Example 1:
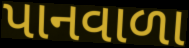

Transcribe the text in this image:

પાનવાળા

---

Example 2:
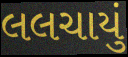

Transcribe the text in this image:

લલચાયું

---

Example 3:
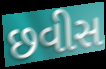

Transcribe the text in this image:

છવીસ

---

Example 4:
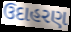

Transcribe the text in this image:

ઉદાહરણ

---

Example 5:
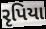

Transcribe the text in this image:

રૃપિયા